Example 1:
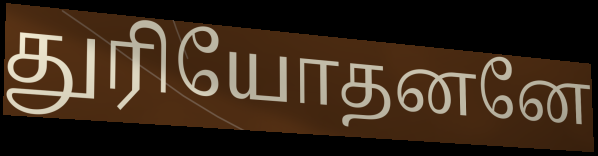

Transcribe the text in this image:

துரியோதனனே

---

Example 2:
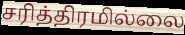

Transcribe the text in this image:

சரித்திரமில்லை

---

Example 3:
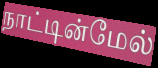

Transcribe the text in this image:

நாட்டின்மேல்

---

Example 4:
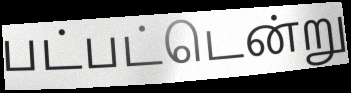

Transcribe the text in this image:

பட்பட்டென்று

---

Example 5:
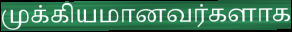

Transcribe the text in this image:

முக்கியமானவர்களாக